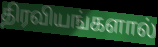
திரவியங்களால்